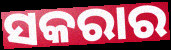
ସକରାର